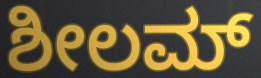
ಶೀಲಮ್